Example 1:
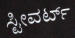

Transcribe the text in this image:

ಸ್ಟೀವರ್ಟ್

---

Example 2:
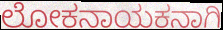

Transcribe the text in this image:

ಲೋಕನಾಯಕನಾಗಿ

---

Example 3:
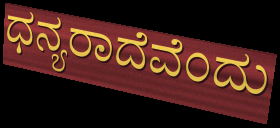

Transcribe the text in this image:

ಧನ್ಯರಾದೆವೆಂದು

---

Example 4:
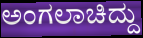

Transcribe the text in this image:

ಅಂಗಲಾಚಿದ್ದು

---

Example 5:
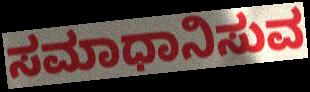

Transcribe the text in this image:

ಸಮಾಧಾನಿಸುವ